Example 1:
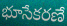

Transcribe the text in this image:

భూసేకరణే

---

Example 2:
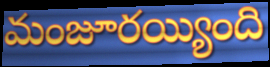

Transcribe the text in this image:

మంజూరయ్యింది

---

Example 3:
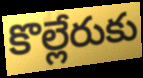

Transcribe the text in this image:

కొల్లేరుకు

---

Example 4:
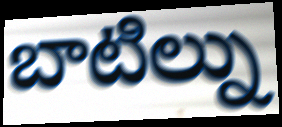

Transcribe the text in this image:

బాటిల్ను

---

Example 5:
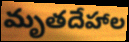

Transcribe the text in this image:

మృతదేహాల